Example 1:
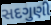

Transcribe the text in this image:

સદગુણી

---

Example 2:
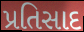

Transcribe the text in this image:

પ્રતિસાદ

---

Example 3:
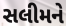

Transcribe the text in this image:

સલીમને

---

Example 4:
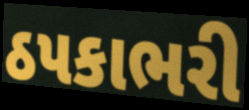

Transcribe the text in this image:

ઠપકાભરી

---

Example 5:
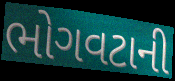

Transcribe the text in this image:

ભોગવટાની